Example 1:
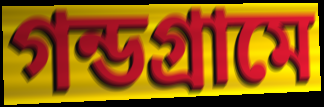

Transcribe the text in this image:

গন্ডগ্রামে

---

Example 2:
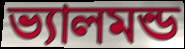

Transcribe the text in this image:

ভ্যালমন্ড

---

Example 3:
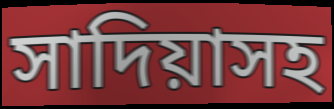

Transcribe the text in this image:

সাদিয়াসহ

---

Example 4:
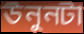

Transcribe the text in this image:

উনুনটা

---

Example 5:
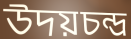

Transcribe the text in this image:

উদয়চন্দ্র